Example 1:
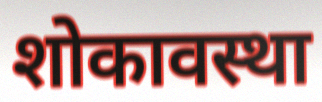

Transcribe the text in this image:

शोकावस्था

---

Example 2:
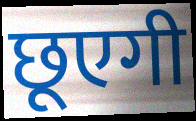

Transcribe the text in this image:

छूएगी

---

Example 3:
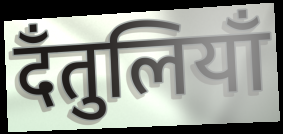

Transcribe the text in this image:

दँतुलियाँ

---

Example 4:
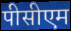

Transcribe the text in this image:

पीसीएम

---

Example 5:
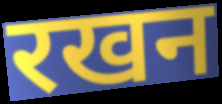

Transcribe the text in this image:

रखन